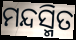
ମନ୍ଦସ୍ମିତ